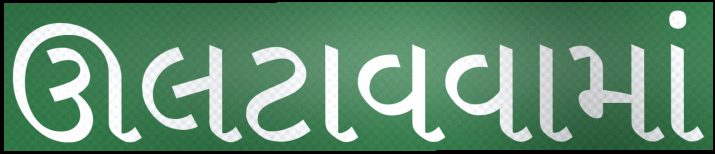
ઊલટાવવામાં